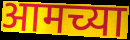
आमच्या